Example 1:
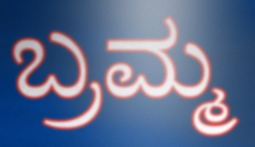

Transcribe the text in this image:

ಬ್ರಮ್ಮ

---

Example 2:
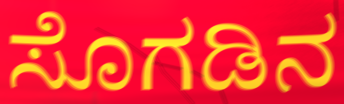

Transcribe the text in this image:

ಸೊಗಡಿನ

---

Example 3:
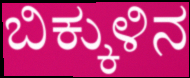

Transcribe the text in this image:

ಬಿಕ್ಕುಳಿನ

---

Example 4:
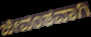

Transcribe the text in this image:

ಜೀವಂತವಾಗಿ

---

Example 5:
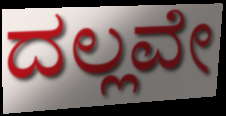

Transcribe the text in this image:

ದಲ್ಲವೇ